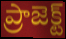
ప్రాజెక్ట్